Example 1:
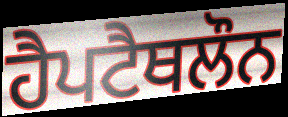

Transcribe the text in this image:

ਹੈਪਟੈਥਲੌਨ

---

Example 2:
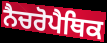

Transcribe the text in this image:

ਨੈਚਰੋਪੈਥਿਕ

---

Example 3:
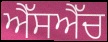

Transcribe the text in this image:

ਐੱਸਐੱਚ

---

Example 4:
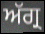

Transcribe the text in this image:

ਅੱਗ੍ਰ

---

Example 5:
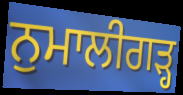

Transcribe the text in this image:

ਨੁਮਾਲੀਗੜ੍ਹ